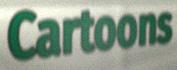
Cartoons